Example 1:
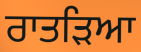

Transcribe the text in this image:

ਰਾਤੜਿਆ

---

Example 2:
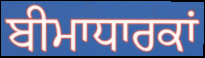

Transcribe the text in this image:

ਬੀਮਾਧਾਰਕਾਂ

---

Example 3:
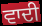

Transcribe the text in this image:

ਵਾਦੀ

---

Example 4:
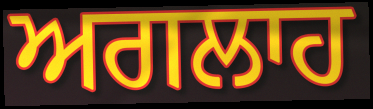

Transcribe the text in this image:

ਅਗਲਾਹ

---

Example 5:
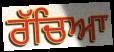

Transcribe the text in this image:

ਰੱਚਿਆ